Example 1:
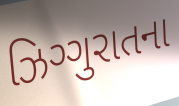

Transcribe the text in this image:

ઝિગ્ગુરાતના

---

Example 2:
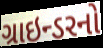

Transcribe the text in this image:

ગ્રાઇન્ડરનો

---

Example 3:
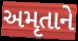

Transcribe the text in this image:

અમૃતાને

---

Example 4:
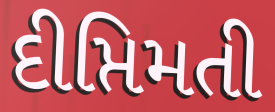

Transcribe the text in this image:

દીપ્તિમતી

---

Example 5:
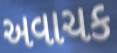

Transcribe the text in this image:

અવાચક